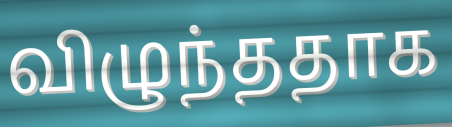
விழுந்ததாக